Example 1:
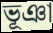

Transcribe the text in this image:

ভূঞা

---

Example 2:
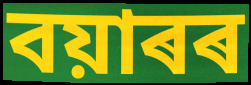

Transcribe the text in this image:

বয়াৰৰ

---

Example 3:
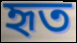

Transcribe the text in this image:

হৃত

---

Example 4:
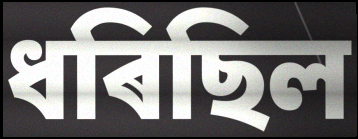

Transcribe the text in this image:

ধৰিছিল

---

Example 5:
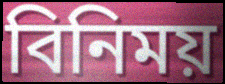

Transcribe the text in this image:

বিনিময়